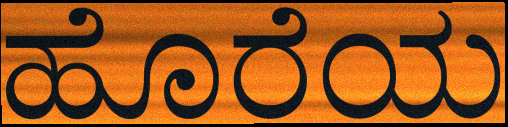
ಹೊರೆಯ